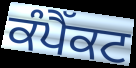
ਕੰਪੈੱਕਟ